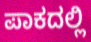
ಪಾಕದಲ್ಲಿ